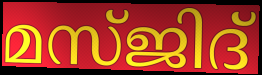
മസ്ജിദ്